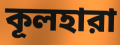
কূলহারা